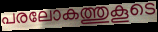
പരലോകത്തുകൂടെ